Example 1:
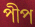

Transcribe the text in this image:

পীপ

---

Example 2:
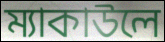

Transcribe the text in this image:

ম্যাকাউলে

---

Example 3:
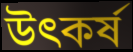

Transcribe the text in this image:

উৎকর্ষ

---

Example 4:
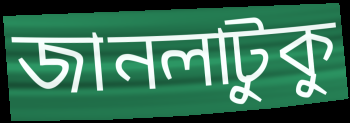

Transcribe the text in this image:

জানলাটুকু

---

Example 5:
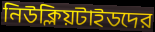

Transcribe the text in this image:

নিউক্লিয়টাইডদের